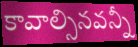
కావాల్సినవన్నీ